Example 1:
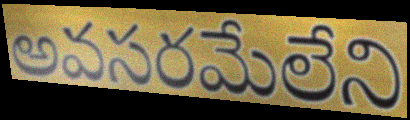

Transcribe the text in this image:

అవసరమేలేని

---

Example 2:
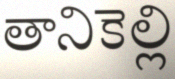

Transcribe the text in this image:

తానికెల్లి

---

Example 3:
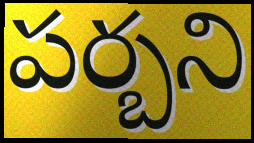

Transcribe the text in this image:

పర్బని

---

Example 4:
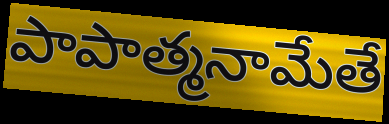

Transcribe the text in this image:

పాపాత్మనామేతే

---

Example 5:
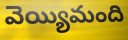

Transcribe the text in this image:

వెయ్యిమంది